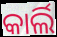
କାର୍ଲି